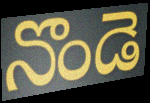
నొండె